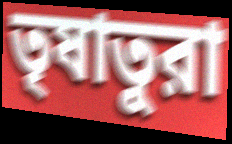
তৃষাতুরা